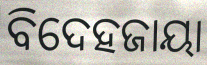
ବିଦେହଜାୟା